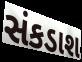
સંકડાશ